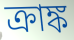
ক্রাঙ্ক